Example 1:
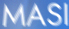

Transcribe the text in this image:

MASI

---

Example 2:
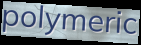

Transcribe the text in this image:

polymeric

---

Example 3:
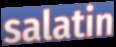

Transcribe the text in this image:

salatin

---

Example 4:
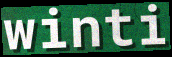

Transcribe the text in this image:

winti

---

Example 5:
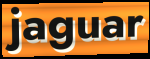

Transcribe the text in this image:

jaguar